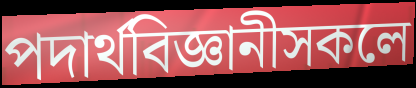
পদাৰ্থবিজ্ঞানীসকলে